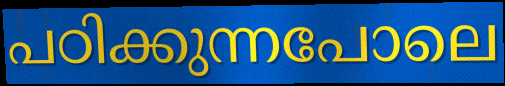
പഠിക്കുന്നപോലെ